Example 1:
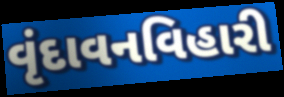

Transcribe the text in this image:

વૃંદાવનવિહારી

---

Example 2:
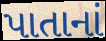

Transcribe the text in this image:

પાતાનાં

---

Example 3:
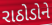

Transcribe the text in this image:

રાઠોડોને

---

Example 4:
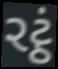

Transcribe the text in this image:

રટ્ઠં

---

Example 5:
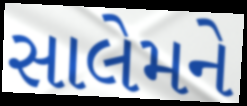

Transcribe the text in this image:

સાલેમને